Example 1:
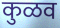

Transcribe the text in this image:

कुळव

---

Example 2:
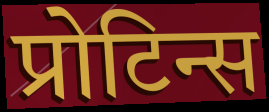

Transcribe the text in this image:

प्रोटिन्स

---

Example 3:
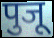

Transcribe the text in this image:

पुजू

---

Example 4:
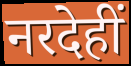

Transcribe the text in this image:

नरदेहीं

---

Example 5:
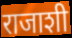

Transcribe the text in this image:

राजाशी